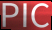
PIC